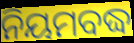
ନିୟମବଦ୍ଧ